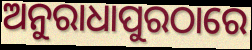
ଅନୁରାଧାପୁରଠାରେ